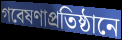
গবেষণাপ্রতিষ্ঠানে